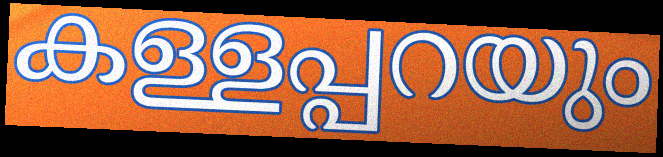
കള്ളപ്പറയും